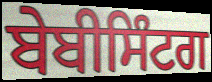
ਬੇਬੀਸਿੰਟਗ